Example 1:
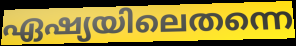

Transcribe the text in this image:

ഏഷ്യയിലെതന്നെ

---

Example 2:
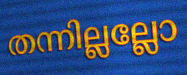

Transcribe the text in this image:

തന്നില്ലല്ലോ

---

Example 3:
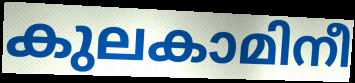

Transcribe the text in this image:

കുലകാമിനീ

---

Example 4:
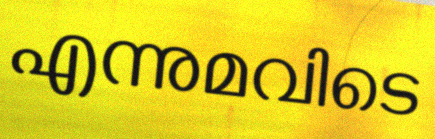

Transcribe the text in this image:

എന്നുമവിടെ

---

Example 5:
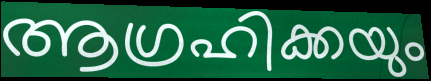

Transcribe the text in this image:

ആഗ്രഹിക്കയും